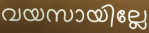
വയസായില്ലേ